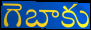
గెబాకు